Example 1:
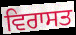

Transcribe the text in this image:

ਵਿਰਾਸਤ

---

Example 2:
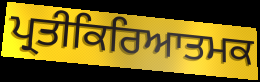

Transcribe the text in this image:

ਪ੍ਰਤੀਕਿਰਿਆਤਮਕ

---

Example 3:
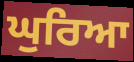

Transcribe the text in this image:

ਘੁਰਿਆ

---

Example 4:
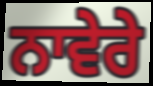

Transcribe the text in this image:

ਨਾਵੇਰੇ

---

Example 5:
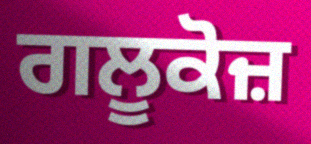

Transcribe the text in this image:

ਗਲੂਕੋਜ਼